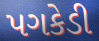
પગકેડી